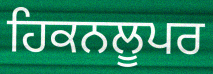
ਹਿਕਨਲੂਪਰ